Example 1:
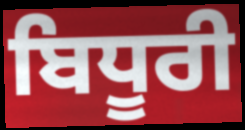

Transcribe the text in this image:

ਬਿਧੂਰੀ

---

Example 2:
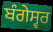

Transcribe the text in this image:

ਬੰਗੇਸ੍ਵਰ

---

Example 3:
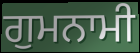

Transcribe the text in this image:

ਗੁਮਨਾਮੀ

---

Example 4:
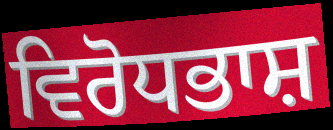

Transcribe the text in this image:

ਵਿਰੋਧਭਾਸ਼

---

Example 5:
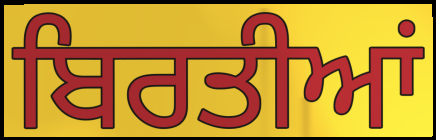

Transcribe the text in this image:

ਬਿਰਤੀਆਂ